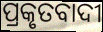
ପ୍ରକୃତବାଦୀ